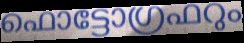
ഫൊട്ടോഗ്രഫറും